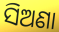
ସିଅଣା